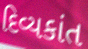
દિવ્યકાંત